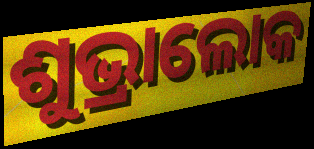
ଶୁଭ୍ରାଲୋକ